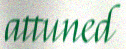
attuned